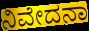
ನಿವೇದನಾ